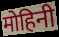
मोहिनी